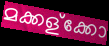
മക്കള്ക്കോ